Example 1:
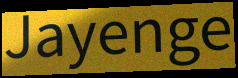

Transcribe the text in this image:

Jayenge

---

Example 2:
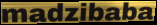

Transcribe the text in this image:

madzibaba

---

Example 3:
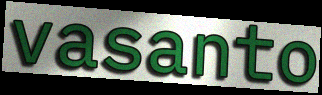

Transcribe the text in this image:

vasanto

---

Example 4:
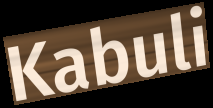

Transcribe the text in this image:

Kabuli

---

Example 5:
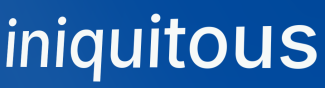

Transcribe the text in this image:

iniquitous